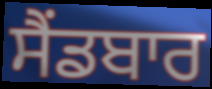
ਸੈਂਡਬਾਰ